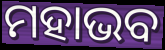
ମହାଭବ